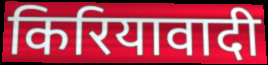
किरियावादी